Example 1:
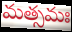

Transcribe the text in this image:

మత్సమః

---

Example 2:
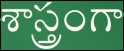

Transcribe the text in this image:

శాస్త్రంగా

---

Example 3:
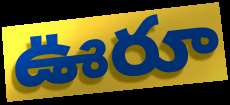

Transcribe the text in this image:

ఊరూ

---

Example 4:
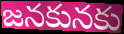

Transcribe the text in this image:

జనకునకు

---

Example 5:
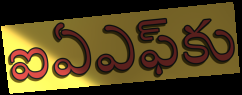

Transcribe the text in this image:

ఐఏఎఫ్‌కు